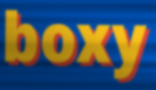
boxy